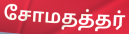
சோமதத்தர்